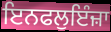
ਇਨਫਲੁਇੰਜ਼ਾ